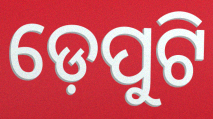
ଡ଼େପୁଟି